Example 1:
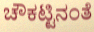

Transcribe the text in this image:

ಚೌಕಟ್ಟಿನಂತೆ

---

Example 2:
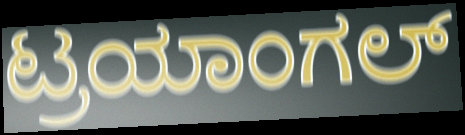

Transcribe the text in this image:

ಟ್ರಯಾಂಗಲ್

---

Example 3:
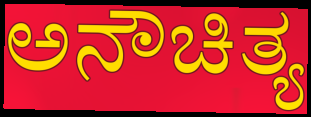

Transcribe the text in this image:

ಅನೌಚಿತ್ಯ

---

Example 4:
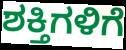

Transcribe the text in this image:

ಶಕ್ತಿಗಳಿಗೆ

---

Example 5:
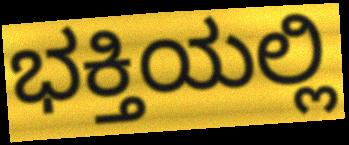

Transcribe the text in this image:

ಭಕ್ತಿಯಲ್ಲಿ